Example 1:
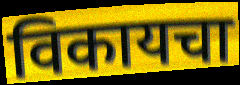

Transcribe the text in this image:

विकायचा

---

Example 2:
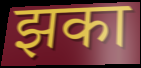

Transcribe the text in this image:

झका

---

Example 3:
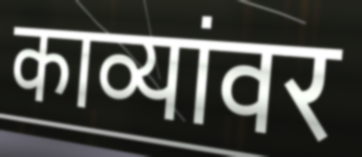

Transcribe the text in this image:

काव्यांवर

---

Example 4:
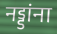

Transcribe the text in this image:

नड्डांना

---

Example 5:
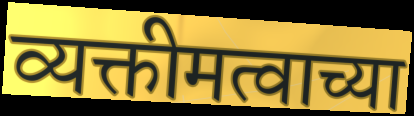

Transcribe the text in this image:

व्यक्तीमत्वाच्या